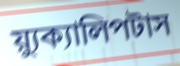
য়্যুক্যালিপটাস